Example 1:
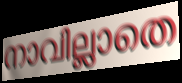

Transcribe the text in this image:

നാവില്ലാതെ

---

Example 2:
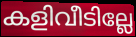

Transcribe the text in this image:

കളിവീടില്ലേ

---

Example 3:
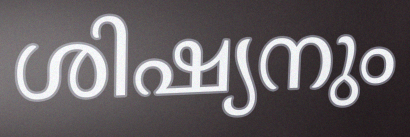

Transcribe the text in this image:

ശിഷ്യനും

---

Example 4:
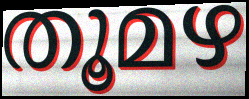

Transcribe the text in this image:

തൂമഴ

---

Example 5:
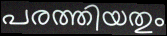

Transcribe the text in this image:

പരത്തിയതും